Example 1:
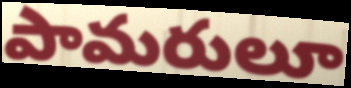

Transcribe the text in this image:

పామరులూ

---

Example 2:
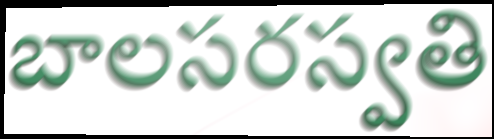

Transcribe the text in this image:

బాలసరస్వతి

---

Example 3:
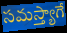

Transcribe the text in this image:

సమస్త్యాగే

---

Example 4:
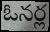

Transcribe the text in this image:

ఓనర్ల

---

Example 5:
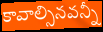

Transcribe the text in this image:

కావాల్సినవన్నీ